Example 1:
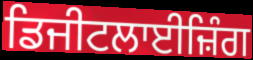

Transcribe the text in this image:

ਡਿਜੀਟਲਾਈਜ਼ਿੰਗ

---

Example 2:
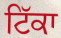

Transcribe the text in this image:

ਟਿੱਕਾ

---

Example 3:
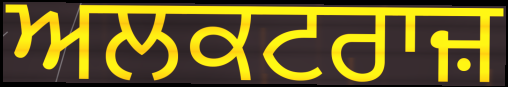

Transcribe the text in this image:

ਅਲਕਟਰਾਜ਼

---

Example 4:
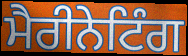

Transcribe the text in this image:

ਮੈਰੀਨੇਟਿੰਗ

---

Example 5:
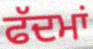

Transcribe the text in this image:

ਫੱਦਮਾਂ